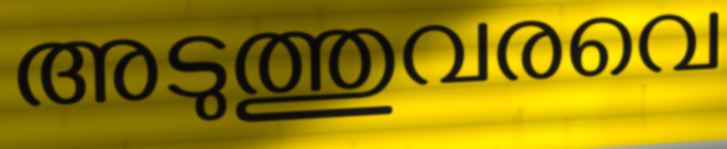
അടുത്തുവരവെ